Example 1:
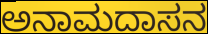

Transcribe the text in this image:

ಅನಾಮದಾಸನ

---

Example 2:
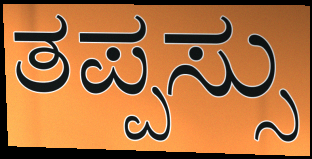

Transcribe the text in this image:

ತಪ್ಪಸ್ಸು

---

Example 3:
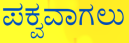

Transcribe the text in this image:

ಪಕ್ವವಾಗಲು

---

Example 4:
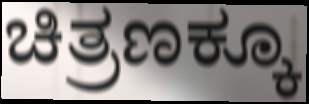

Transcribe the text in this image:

ಚಿತ್ರಣಕ್ಕೂ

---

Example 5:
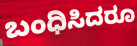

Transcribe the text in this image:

ಬಂಧಿಸಿದರೂ